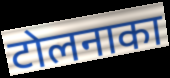
टोलनाका